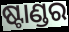
ଷ୍ଟାଣ୍ଡର